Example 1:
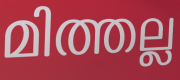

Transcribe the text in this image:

മിത്തല്ല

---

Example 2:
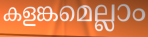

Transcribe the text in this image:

കളങ്കമെല്ലാം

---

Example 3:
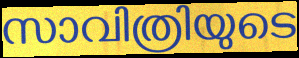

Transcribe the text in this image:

സാവിത്രിയുടെ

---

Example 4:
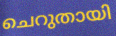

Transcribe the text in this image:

ചെറുതായി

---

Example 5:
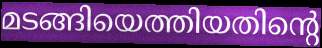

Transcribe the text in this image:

മടങ്ങിയെത്തിയതിന്റെ